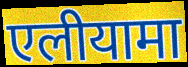
एलीयामा